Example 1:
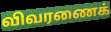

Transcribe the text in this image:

விவரணைக்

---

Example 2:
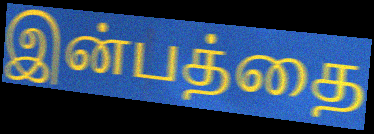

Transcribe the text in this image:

இன்பத்தை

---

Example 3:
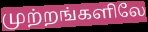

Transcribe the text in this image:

முற்றங்களிலே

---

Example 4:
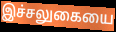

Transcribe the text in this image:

இச்சலுகையை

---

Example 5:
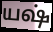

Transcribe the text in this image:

யஷ்